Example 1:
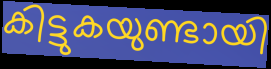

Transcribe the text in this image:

കിട്ടുകയുണ്ടായി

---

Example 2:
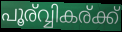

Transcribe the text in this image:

പൂര്വ്വികര്ക്ക്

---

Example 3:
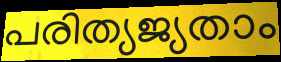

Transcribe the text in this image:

പരിത്യജ്യതാം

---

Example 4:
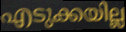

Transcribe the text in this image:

എടുക്കയില്ല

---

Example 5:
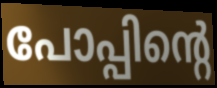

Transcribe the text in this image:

പോപ്പിന്റെ